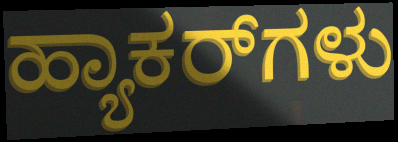
ಹ್ಯಾಕರ್‌ಗಳು